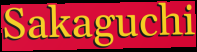
Sakaguchi